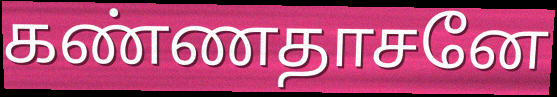
கண்ணதாசனே